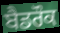
ਬੈਡਰੌਕ